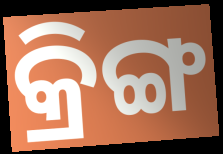
କ୍ରିଙ୍ଗ